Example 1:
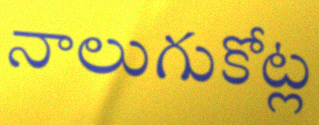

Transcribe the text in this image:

నాలుగుకోట్ల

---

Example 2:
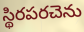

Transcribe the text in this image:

స్థిరపరచెను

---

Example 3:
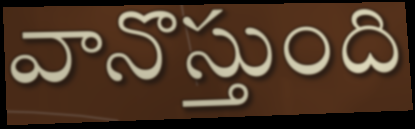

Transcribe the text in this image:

వానొస్తుంది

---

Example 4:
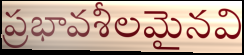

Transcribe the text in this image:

ప్రభావశీలమైనవి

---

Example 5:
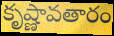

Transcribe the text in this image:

కృష్ణావతారం